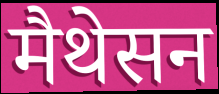
मैथेसन